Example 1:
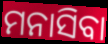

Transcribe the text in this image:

ମନାସିବା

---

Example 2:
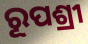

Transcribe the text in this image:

ରୂପଶ୍ରୀ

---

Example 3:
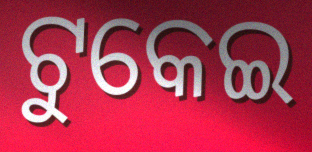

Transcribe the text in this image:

ଟୁକେଇ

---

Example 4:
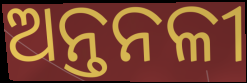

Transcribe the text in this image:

ଅନ୍ତନଳୀ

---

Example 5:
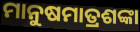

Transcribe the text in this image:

ମାନୁଷମାତ୍ରଶଙ୍କା